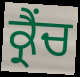
ਕ੍ਰੈਂਚ